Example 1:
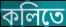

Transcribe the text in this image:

কলিতে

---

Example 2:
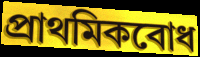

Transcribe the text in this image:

প্রাথমিকবোধ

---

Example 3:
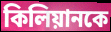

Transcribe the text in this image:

কিলিয়ানকে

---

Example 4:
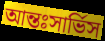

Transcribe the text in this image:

আন্তঃসার্ভিস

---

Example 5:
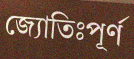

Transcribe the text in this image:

জ্যোতিঃপূর্ণ